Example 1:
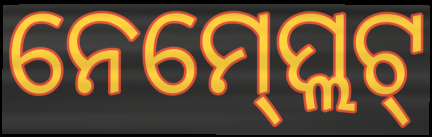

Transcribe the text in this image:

ନେମ୍‍ପ୍ଲେଟ୍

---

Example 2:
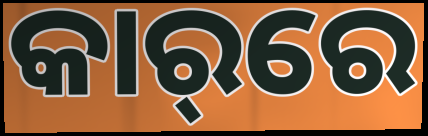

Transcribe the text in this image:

କାର୍‌ରେ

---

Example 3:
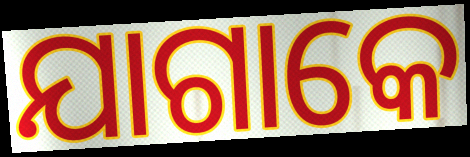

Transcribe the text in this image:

ଯାଗାକେ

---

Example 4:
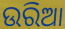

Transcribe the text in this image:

ଉରିଆ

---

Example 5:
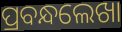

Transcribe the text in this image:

ପ୍ରବନ୍ଧଲେଖା